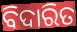
ବିଦାରିତ